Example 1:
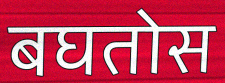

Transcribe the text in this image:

बघतोस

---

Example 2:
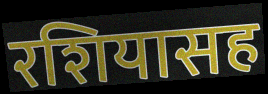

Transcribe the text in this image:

रशियासह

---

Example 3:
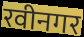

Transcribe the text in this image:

रवीनगर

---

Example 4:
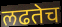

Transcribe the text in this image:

लढतेच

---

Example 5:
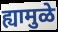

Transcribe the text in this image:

ह्यामुळे